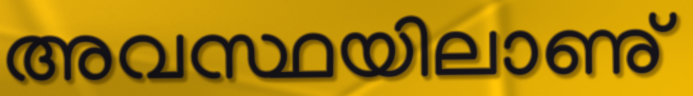
അവസ്ഥയിലാണു്